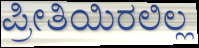
ಪ್ರೀತಿಯಿರಲಿಲ್ಲ